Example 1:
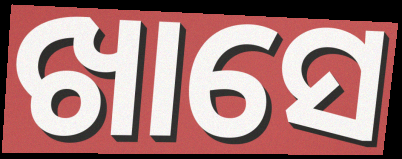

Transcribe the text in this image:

ଖାସେ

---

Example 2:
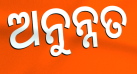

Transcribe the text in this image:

ଅନୁନ୍ନତ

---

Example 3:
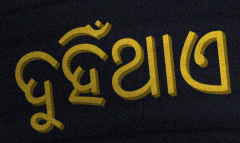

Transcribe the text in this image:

ଦୁହିଁଥାଏ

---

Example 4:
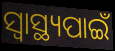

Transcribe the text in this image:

ସ୍ବାସ୍ଥ୍ୟପାଇଁ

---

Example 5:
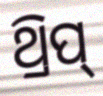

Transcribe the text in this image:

ଥ୍ରିପ୍